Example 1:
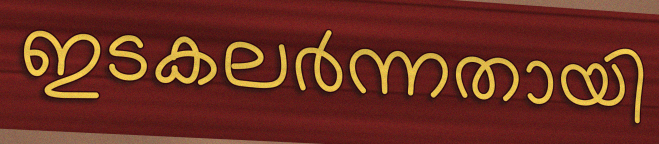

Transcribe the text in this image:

ഇടകലർന്നതായി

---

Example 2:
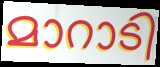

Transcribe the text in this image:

മാറാടി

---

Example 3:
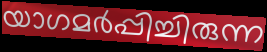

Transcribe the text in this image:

യാഗമർപ്പിച്ചിരുന്ന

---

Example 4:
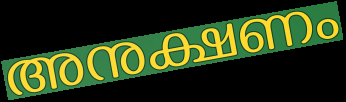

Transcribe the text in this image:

അനുക്ഷണം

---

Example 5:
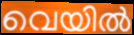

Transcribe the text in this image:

വെയിൽ